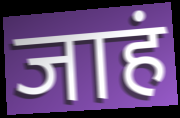
जाहं